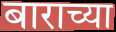
बाराच्या